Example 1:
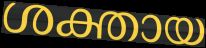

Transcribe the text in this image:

ശക്തായ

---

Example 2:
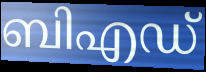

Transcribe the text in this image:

ബിഎഡ്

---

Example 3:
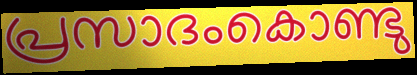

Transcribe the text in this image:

പ്രസാദംകൊണ്ടു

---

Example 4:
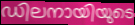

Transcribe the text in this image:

ഡിലനായിയുടെ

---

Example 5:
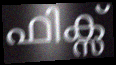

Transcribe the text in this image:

ഫിക്സ്